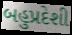
બહુપ્રદેશી